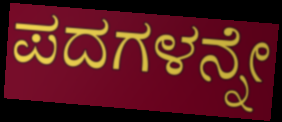
ಪದಗಳನ್ನೇ